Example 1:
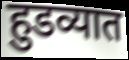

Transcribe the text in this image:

हुडव्यात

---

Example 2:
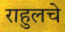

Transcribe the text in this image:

राहुलचे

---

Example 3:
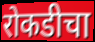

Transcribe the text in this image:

रोकडीचा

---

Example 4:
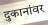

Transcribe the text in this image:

दुकानांवर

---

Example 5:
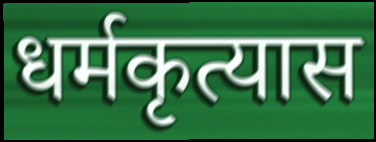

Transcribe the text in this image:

धर्मकृत्यास